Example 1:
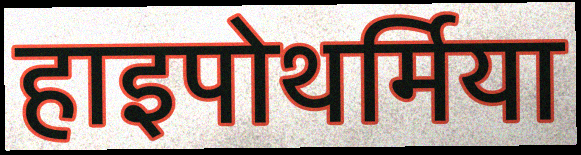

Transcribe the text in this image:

हाइपोथर्मिया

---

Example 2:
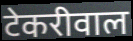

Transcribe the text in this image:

टेकरीवाल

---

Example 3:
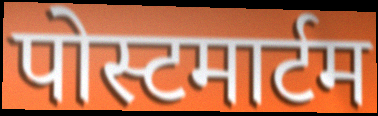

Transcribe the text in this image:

पोस्टमार्टम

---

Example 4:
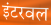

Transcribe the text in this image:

इंटरवल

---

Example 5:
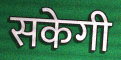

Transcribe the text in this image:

सकेगी